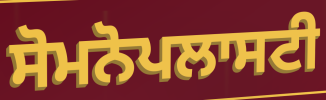
ਸੋਮਨੋਪਲਾਸਟੀ